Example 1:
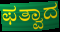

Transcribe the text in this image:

ಫತ್ವಾದ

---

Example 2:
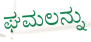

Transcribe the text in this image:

ಘಮಲನ್ನು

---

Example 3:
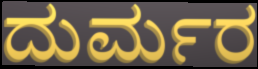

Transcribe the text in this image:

ದುರ್ಮರ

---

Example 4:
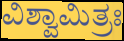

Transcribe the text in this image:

ವಿಶ್ವಾಮಿತ್ರಃ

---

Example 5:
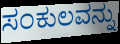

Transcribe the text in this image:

ಸಂಕುಲವನ್ನು